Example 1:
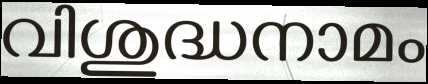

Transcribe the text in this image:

വിശുദ്ധനാമം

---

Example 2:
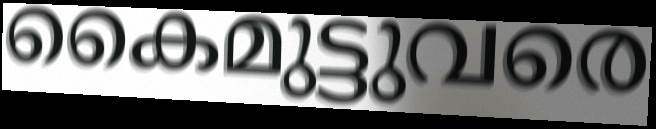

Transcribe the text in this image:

കൈമുട്ടുവരെ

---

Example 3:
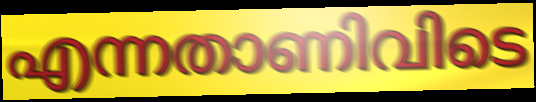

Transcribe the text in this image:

എന്നതാണിവിടെ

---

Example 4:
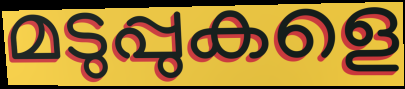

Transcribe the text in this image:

മടുപ്പുകളെ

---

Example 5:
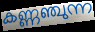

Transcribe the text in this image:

കണ്ണഞ്ചുന്ന